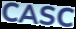
CASC